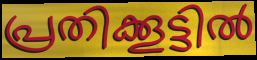
പ്രതിക്കൂട്ടിൽ